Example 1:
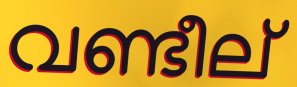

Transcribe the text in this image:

വണ്ടീല്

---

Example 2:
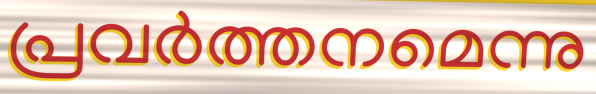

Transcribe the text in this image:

പ്രവർത്തനമെന്നു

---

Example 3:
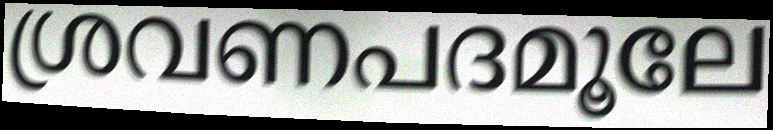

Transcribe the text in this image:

ശ്രവണപദമൂലേ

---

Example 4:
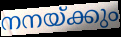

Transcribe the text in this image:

നനയ്ക്കും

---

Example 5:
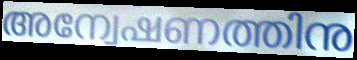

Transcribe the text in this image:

അന്വേഷണത്തിനു